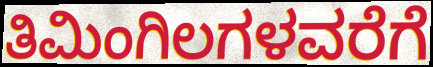
ತಿಮಿಂಗಿಲಗಳವರೆಗೆ